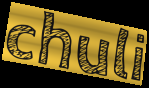
chuli